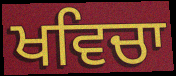
ਖਵਿਚਾ